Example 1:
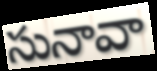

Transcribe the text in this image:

సునావా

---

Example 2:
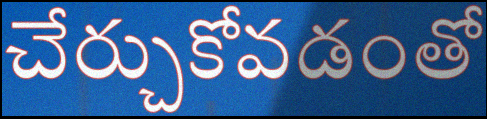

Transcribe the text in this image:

చేర్చుకోవడంతో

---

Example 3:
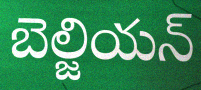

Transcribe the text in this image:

బెల్జియన్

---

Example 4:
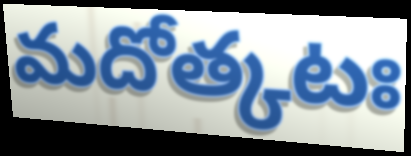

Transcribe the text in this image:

మదోత్కటః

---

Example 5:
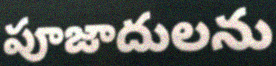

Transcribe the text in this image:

పూజాదులను